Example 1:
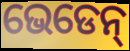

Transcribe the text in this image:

ଭେଡେନ୍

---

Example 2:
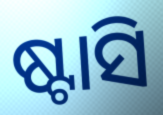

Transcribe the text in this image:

ଷ୍ଟାସି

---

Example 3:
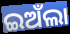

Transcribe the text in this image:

ଇଅଁଲା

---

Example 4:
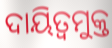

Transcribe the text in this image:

ଦାୟିତ୍ୱମୁକ୍ତ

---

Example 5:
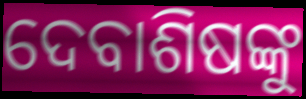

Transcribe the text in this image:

ଦେବାଶିଷଙ୍କୁ